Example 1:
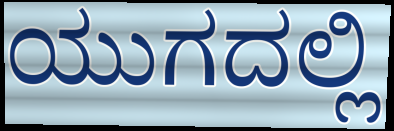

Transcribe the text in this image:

ಯುಗದಲ್ಲಿ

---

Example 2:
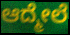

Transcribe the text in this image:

ಆದ್ಮೇಲೆ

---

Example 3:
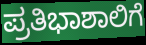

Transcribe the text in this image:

ಪ್ರತಿಭಾಶಾಲಿಗೆ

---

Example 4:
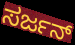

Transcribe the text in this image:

ಸರ್ಜನ್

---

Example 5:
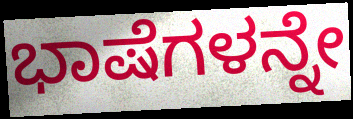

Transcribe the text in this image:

ಭಾಷೆಗಳನ್ನೇ